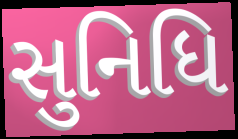
સુનિધિ